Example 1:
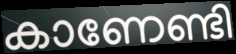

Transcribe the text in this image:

കാണേണ്ടി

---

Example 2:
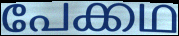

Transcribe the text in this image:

പേക്കഥ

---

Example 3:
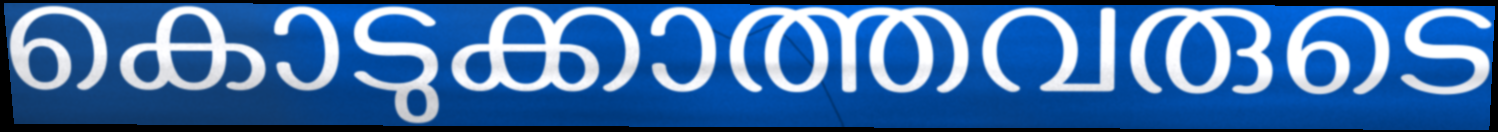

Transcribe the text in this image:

കൊടുക്കാത്തവരുടെ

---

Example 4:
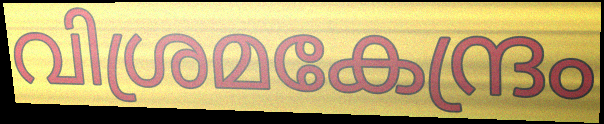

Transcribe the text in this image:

വിശ്രമകേന്ദ്രം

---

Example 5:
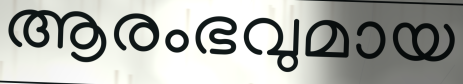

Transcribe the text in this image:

ആരംഭവുമായ